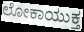
ಲೋಕಾಯುಕ್ತ